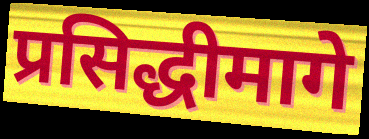
प्रसिद्धीमागे